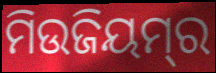
ମିଉଜିୟମ୍‌ର